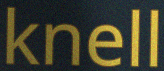
knell